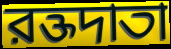
রক্তদাতা